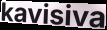
kavisiva